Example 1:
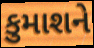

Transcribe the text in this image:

કુમાશને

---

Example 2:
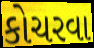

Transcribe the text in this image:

કોચરવા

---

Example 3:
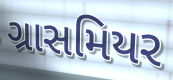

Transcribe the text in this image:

ગ્રાસમિયર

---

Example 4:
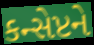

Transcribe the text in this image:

કન્સેપ્ટને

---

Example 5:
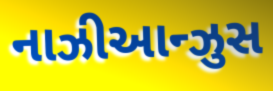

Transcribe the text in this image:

નાઝીઆન્ઝુસ